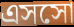
এসসো